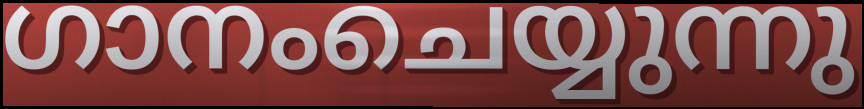
ഗാനംചെയ്യുന്നു